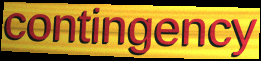
contingency